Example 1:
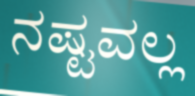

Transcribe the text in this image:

ನಷ್ಟವಲ್ಲ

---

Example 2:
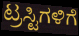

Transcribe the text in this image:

ಟ್ರಸ್ಟಿಗಳಿಗೆ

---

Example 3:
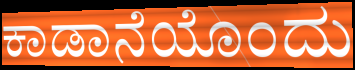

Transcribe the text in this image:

ಕಾಡಾನೆಯೊಂದು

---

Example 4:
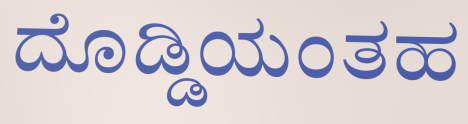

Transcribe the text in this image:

ದೊಡ್ಡಿಯಂತಹ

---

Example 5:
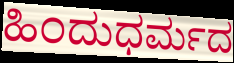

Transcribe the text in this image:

ಹಿಂದುಧರ್ಮದ